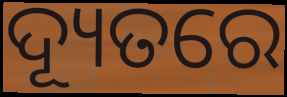
ଦ୍ୟୂତରେ